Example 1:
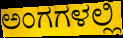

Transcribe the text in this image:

ಅಂಗಗಳಲ್ಲಿ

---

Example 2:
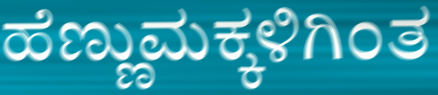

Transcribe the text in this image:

ಹೆಣ್ಣುಮಕ್ಕಳಿಗಿಂತ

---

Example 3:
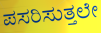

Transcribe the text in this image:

ಪಸರಿಸುತ್ತಲೇ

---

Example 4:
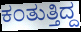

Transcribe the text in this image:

ಕಂತುತ್ತಿದ್ದ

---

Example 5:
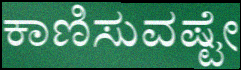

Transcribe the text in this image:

ಕಾಣಿಸುವಷ್ಟೇ